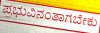
ಪ್ರಭುವಿನಂತಾಗಬೇಕು